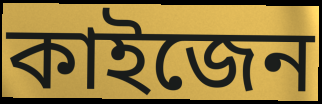
কাইজেন